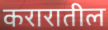
करारातील